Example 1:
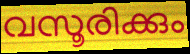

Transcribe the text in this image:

വസൂരിക്കും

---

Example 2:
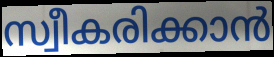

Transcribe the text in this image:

സ്വീകരിക്കാൻ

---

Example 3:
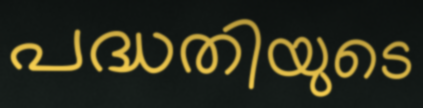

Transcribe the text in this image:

പദ്ധതിയുടെ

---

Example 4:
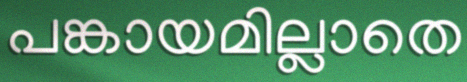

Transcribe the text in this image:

പങ്കായമില്ലാതെ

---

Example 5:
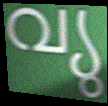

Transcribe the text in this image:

വ്യു